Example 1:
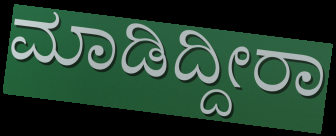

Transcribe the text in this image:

ಮಾಡಿದ್ದೀರಾ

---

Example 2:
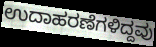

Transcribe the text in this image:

ಉದಾಹರಣೆಗಳಿದ್ದವು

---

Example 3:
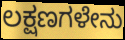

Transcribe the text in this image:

ಲಕ್ಷಣಗಳೇನು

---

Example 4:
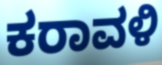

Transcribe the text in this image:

ಕರಾವಳಿ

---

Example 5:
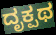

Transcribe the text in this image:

ದೃಕ್ಪಥ